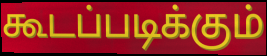
கூடப்படிக்கும்